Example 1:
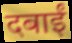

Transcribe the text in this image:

दबाईं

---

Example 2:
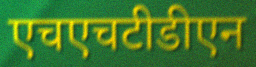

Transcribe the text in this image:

एचएचटीडीएन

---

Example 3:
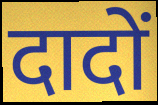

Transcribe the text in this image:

दादों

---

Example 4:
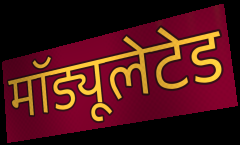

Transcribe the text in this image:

मॉड्यूलेटेड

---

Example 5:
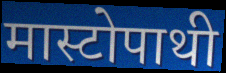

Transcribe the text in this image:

मास्टोपाथी